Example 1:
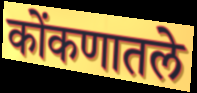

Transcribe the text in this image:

कोंकणातले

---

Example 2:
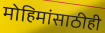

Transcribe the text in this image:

मोहिमांसाठीही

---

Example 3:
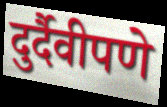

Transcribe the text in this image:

दुर्दैवीपणे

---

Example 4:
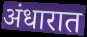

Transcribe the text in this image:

अंधारात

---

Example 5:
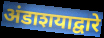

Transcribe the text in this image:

अंडाशयाद्वारे